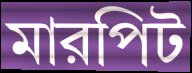
মারপিট